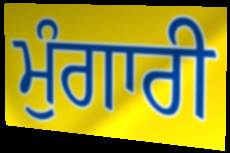
ਮੁੰਗਾਰੀ